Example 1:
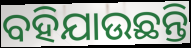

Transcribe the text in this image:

ବହିଯାଉଛନ୍ତି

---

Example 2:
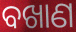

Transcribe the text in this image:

ବଖାଣ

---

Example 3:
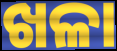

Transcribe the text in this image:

ଖଳା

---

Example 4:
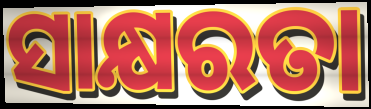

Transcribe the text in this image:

ସାକ୍ଷରତା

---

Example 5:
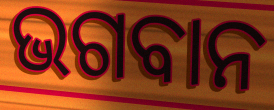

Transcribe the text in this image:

ଭଗବାନ